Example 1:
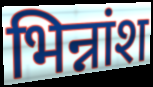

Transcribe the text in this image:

भिन्नांश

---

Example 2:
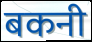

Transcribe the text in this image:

बकनी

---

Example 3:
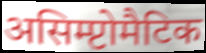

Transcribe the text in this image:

असिम्प्टोमैटिक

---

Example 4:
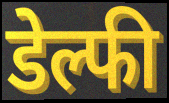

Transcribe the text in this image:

डेल्फी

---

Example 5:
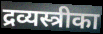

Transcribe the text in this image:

द्रव्यस्त्रीका